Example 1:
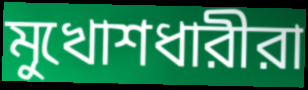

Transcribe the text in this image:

মুখোশধারীরা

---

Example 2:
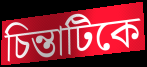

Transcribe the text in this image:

চিন্তাটিকে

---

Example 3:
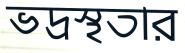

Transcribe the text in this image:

ভদ্রস্থতার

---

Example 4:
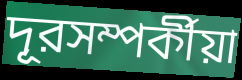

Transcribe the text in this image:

দূরসম্পর্কীয়া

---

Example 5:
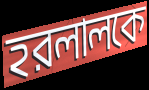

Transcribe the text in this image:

হরলালকে